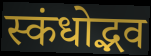
स्कंधोद्भव